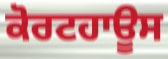
ਕੋਰਟਹਾਊਸ